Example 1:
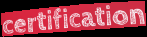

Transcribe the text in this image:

certification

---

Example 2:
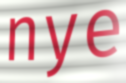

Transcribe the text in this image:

nye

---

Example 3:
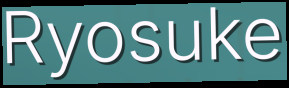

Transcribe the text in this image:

Ryosuke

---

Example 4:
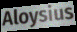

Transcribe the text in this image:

Aloysius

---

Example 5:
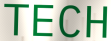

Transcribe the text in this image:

TECH